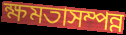
ক্ষমতাসম্পন্ন